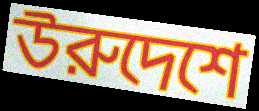
উরুদেশে